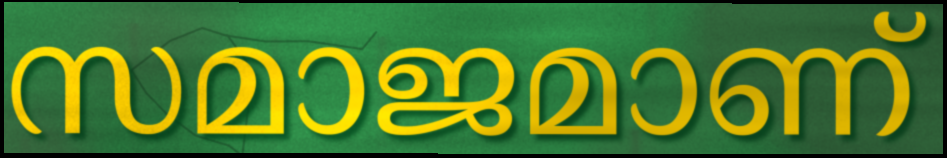
സമാജമാണ്